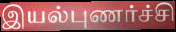
இயல்புணர்ச்சி